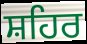
ਸ਼ਹਿਰ